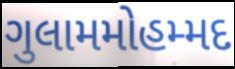
ગુલામમોહમ્મદ